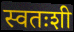
स्वतःशी